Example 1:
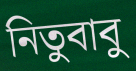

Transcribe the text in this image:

নিতুবাবু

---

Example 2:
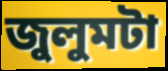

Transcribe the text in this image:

জুলুমটা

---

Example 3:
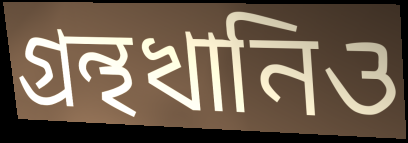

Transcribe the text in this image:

গ্রন্থখানিও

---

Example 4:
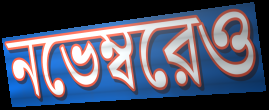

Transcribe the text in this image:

নভেম্বরেও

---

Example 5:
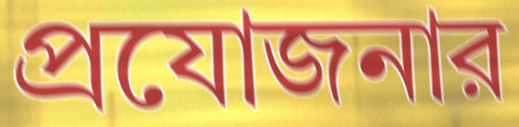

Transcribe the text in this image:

প্রযোজনার